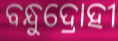
ବନ୍ଧୁଦ୍ରୋହୀ